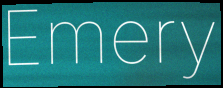
Emery